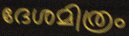
ദേശമിത്രം